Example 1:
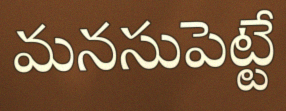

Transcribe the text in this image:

మనసుపెట్టే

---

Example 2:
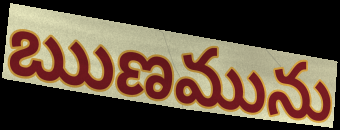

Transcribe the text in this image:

ఋణమును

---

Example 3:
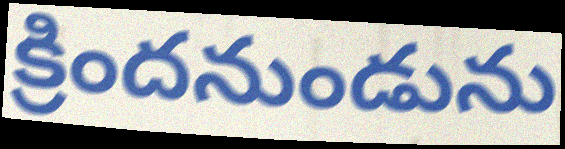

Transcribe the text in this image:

క్రిందనుండును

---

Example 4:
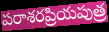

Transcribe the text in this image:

పరాశరప్రియపుత్ర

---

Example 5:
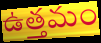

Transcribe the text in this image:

ఉత్తమం